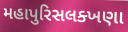
મહાપુરિસલક્ખણા